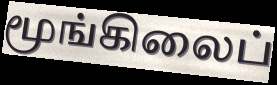
மூங்கிலைப்